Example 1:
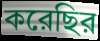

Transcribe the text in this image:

করেছির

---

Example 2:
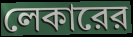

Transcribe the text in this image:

লেকারের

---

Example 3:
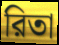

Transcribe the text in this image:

রিতা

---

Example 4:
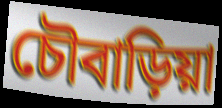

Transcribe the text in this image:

চৌবাড়িয়া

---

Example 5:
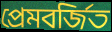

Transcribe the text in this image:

প্রেমবর্জিত